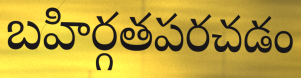
బహిర్గతపరచడం